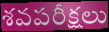
శవపరీక్షలు